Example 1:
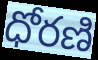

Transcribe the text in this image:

ధోరణి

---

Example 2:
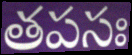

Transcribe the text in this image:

తపసః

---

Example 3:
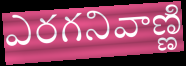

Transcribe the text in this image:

ఎరగనివాణ్ణి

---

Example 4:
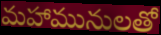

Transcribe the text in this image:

మహామునులతో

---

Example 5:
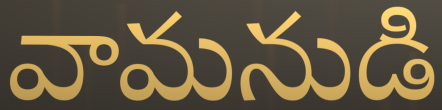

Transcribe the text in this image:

వామనుడి